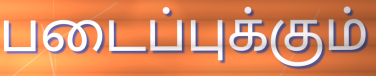
படைப்புக்கும்